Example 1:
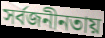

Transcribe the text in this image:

সর্বজনীনতায়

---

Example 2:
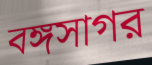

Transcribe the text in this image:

বঙ্গসাগর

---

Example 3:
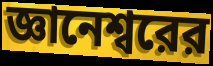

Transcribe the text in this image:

জ্ঞানেশ্বরের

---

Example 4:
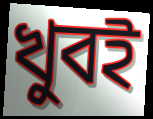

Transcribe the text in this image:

খুবই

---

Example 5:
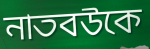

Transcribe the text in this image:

নাতবউকে